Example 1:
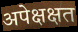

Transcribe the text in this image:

अपेक्षक्षत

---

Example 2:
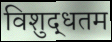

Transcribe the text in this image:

विशुद्धतम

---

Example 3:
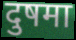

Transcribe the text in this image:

दुषमा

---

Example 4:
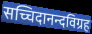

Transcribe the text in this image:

सच्चिदानन्दविग्रह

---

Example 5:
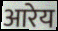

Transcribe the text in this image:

आरेय